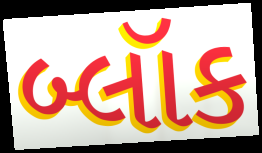
બ્લૉક